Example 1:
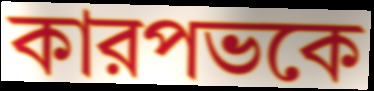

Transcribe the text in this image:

কারপভকে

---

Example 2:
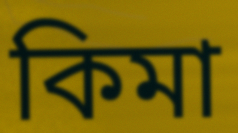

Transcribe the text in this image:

কিমা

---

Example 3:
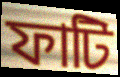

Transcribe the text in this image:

ফাটি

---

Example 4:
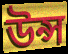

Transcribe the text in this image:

উন্স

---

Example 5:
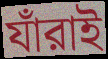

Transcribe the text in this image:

যাঁরাই